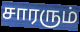
சாரரும்